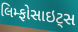
લિમ્ફોસાઇટ્સ